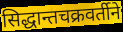
सिद्धान्तचक्रवर्तीने